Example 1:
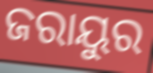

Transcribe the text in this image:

ଜରାୟୁର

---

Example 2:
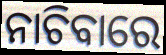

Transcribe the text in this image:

ନାଚିବାରେ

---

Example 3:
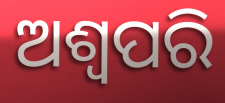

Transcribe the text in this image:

ଅଶ୍ୱପରି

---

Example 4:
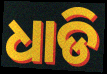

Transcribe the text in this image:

ଧାଡି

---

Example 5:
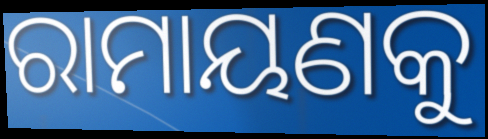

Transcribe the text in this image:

ରାମାୟଣକୁ